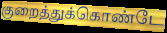
குறைத்துக்கொண்டே